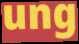
ung